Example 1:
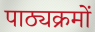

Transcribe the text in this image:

पाठ्यक्रमों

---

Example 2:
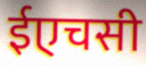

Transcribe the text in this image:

ईएचसी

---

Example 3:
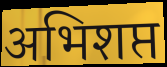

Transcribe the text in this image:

अभिशप्त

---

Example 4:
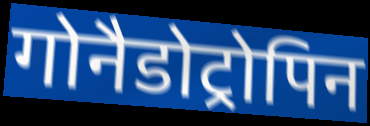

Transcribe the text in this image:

गोनैडोट्रोपिन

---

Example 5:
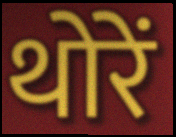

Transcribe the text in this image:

थोरें